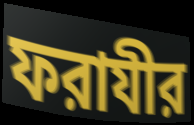
ফরাযীর